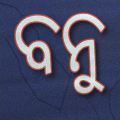
ବନୁ